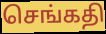
செங்கதி